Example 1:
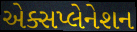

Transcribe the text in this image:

એક્સપ્લેનેશન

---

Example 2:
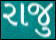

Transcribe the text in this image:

રાજુ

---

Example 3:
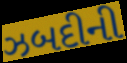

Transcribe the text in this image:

ઝબદીની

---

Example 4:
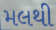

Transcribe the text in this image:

મલથી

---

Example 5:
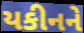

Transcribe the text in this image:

યકીનને